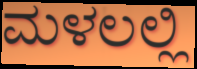
ಮಳಲಲ್ಲಿ